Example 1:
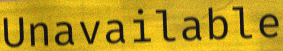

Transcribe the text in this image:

Unavailable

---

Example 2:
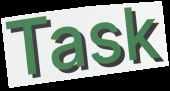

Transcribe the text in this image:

Task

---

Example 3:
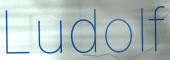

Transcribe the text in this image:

Ludolf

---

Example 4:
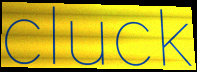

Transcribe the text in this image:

cluck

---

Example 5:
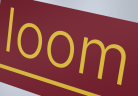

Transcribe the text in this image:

loom